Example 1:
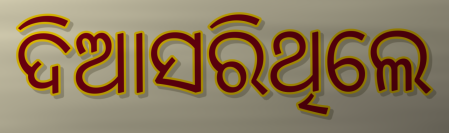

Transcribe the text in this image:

ଦିଆସରିଥିଲେ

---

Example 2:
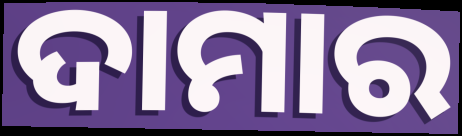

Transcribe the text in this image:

ଦାମାର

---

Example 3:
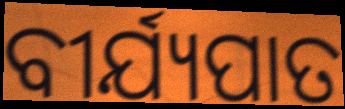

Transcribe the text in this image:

ବୀର୍ଯ୍ୟପାତ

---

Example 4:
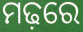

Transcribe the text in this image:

ମଢ଼ରେ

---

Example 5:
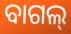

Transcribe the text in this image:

ବାଗଲ୍